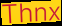
Thnx